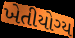
ખેતીયોગ્ય